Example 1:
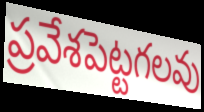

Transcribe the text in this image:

ప్రవేశపెట్టగలవు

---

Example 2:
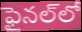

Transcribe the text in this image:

ఫైనల్‌లో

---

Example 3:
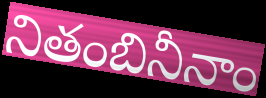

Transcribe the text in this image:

నితంబినీనాం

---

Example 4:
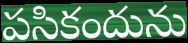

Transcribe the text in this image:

పసికందును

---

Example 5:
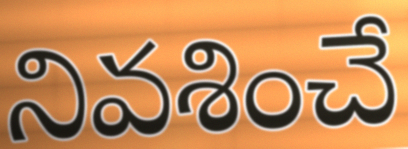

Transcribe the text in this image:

నివశించే